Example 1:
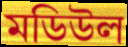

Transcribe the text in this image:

মডিউল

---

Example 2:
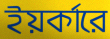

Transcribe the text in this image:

ইয়র্কারে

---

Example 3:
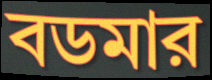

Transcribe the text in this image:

বডমার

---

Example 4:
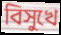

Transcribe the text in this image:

বিসুখে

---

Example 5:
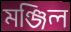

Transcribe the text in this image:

মঞ্জিল